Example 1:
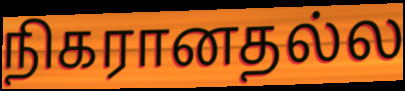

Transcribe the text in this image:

நிகரானதல்ல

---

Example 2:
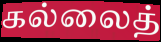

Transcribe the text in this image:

கல்லைத்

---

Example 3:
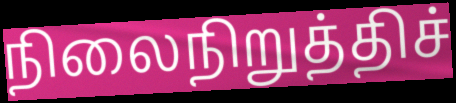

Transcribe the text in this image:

நிலைநிறுத்திச்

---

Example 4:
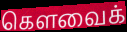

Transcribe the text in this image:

கௌவைக்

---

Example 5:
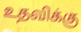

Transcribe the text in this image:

உதவிக்கு